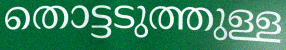
തൊട്ടടുത്തുള്ള